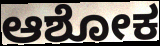
ಆಶೋಕ